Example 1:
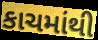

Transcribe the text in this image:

કાચમાંથી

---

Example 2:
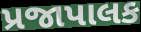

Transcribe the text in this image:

પ્રજાપાલક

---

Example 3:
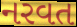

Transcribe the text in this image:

નરવત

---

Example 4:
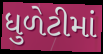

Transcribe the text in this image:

ધુળેટીમાં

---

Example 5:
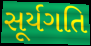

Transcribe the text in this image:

સૂર્યગતિ